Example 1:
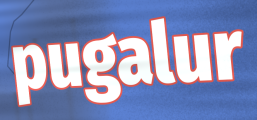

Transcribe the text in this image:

pugalur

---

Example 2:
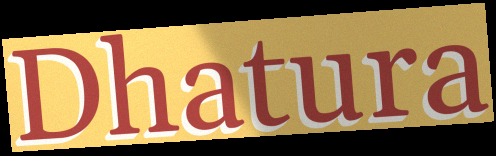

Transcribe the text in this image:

Dhatura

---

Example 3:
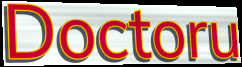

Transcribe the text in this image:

Doctoru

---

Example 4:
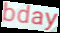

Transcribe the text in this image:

bday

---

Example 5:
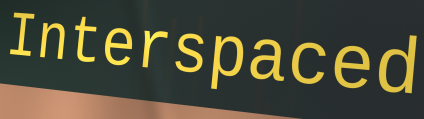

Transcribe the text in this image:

Interspaced